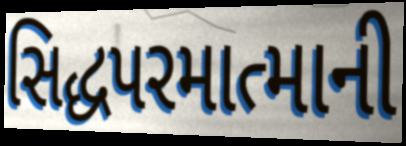
સિદ્ધપરમાત્માની